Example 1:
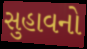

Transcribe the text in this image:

સુહાવનો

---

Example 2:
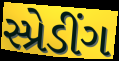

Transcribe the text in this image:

સ્પ્રેડીંગ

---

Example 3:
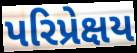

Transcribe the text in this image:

પરિપ્રેક્ષય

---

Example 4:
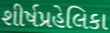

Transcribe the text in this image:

શીર્ષપ્રહેલિકા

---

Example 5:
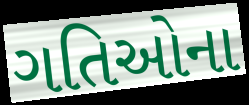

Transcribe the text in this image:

ગતિઓના